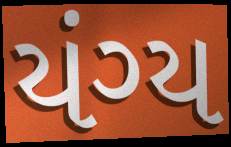
યંગ્ય